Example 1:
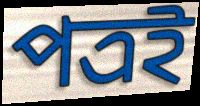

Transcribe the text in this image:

পত্ৰই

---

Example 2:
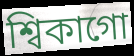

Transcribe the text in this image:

শ্বিকাগো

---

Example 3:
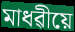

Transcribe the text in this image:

মাধৱীয়ে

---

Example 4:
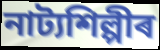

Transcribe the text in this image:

নাট্যশিল্পীৰ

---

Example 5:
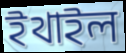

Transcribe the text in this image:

ইথাইল